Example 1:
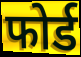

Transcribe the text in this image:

फोर्ड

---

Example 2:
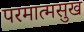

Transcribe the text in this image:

परमात्मसुख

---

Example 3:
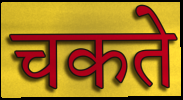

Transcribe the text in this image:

चकते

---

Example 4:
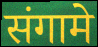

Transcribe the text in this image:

संगामे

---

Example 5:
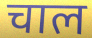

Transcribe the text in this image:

चाल